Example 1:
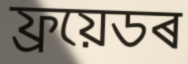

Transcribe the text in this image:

ফ্ৰয়েডৰ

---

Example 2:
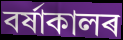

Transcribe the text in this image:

বৰ্ষাকালৰ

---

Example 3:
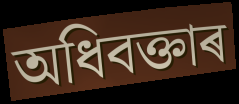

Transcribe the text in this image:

অধিবক্তাৰ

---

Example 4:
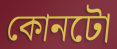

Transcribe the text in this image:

কোনটো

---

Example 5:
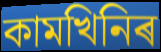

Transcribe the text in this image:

কামখিনিৰ